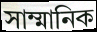
সাম্মানিক